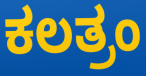
ಕಲತ್ರಂ